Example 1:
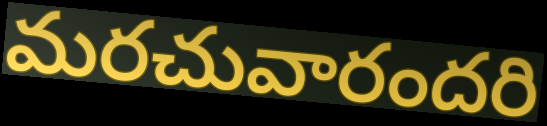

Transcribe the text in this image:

మరచువారందరి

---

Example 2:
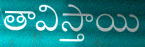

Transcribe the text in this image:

తావిస్తాయి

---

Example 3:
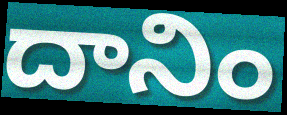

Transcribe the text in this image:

దానిం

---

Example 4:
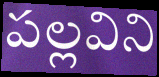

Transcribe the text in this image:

పల్లవిని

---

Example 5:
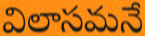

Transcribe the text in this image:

విలాసమనే